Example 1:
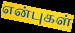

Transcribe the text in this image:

என்புகள்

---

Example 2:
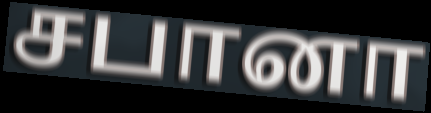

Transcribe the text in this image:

சபானா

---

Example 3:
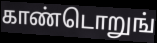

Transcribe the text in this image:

காண்டொறுங்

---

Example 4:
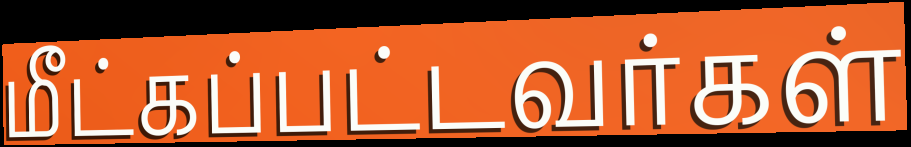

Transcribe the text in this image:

மீட்கப்பட்டவர்கள்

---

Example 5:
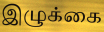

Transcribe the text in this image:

இழுக்கை